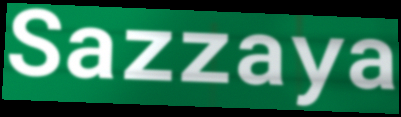
Sazzaya